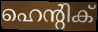
ഹെന്റിക്